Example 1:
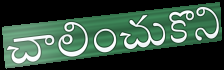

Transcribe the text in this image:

చాలించుకొని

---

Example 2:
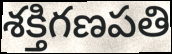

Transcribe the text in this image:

శక్తిగణపతి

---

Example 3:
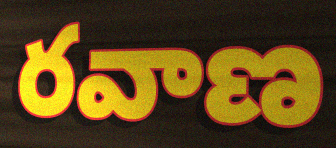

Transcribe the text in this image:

రవాణ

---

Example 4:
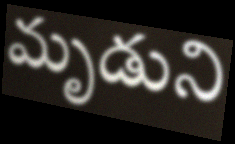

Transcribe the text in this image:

మృడుని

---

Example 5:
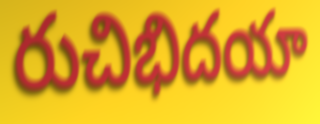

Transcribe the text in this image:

రుచిభిదయా